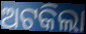
ଅଟକିଲା